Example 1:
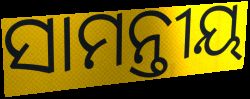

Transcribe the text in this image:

ସାମନ୍ତୀୟ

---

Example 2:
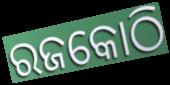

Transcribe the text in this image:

ରଜକୋଠି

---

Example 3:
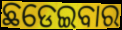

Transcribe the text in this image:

ଛଡେଇବାର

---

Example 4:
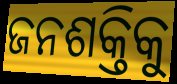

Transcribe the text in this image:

ଜନଶକ୍ତିକୁ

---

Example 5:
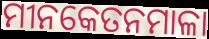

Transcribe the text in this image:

ମୀନକେତନମାଳା